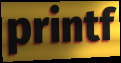
printf